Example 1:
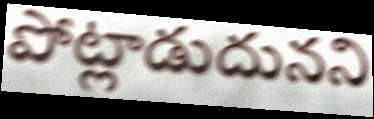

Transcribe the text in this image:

పోట్లాడుదునని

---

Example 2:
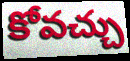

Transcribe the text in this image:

కోవచ్చు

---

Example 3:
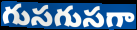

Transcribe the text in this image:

గుసగుసగా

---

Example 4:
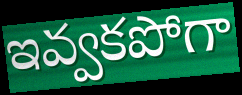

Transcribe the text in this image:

ఇవ్వకపోగా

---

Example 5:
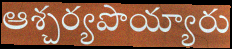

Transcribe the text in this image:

ఆశ్చర్యపొయ్యారు